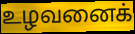
உழவனைக்